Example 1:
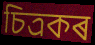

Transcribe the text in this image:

চিত্ৰকৰ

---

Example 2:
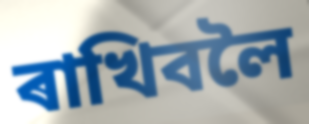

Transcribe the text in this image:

ৰাখিবলৈ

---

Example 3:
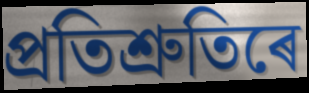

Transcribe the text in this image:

প্ৰতিশ্ৰুতিৰে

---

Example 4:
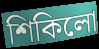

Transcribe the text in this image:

শিকিলো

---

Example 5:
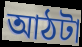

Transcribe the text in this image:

আঠটা